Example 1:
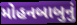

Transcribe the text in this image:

મોહનબાબુનું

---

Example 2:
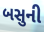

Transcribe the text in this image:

બસુની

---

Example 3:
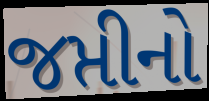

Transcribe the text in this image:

જપ્તીનો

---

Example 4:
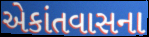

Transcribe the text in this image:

એકાંતવાસના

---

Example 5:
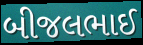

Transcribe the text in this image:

બીજલભાઈ